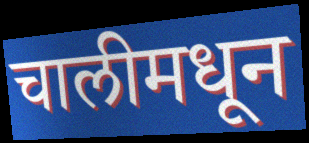
चालीमधून